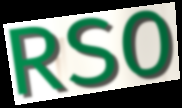
RSO